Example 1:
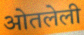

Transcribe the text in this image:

ओतलेली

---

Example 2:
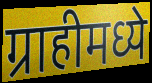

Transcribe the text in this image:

ग्राहीमध्ये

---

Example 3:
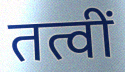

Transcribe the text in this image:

तत्वीं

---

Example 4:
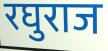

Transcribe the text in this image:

रघुराज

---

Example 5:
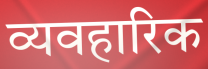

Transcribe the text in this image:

व्यवहारिक